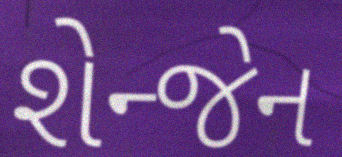
શેન્જેન